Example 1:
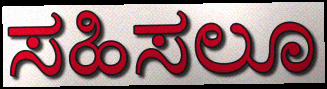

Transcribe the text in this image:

ಸಹಿಸಲೂ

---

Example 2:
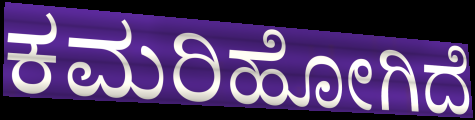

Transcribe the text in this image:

ಕಮರಿಹೋಗಿದೆ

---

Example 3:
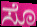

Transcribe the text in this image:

ಸೊ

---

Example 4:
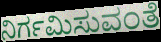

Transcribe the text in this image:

ನಿರ್ಗಮಿಸುವಂತೆ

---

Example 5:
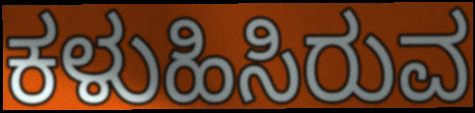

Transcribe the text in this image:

ಕಳುಹಿಸಿರುವ